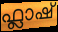
ഫ്ലാഷ്